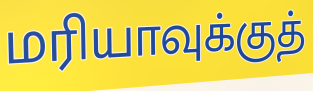
மரியாவுக்குத்